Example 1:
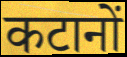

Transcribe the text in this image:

कटानों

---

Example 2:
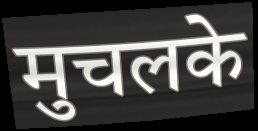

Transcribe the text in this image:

मुचलके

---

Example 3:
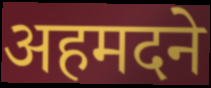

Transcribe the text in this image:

अहमदने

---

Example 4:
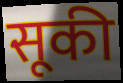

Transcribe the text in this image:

सूकी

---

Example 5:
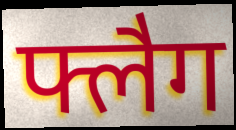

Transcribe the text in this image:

फ्लैग